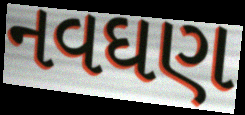
નવઘણ